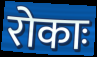
रोकाः